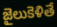
జైలుకెళితే